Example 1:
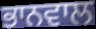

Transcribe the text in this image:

ਭਾਨਵਾਲ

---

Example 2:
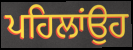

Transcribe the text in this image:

ਪਹਿਲਾਂਉਹ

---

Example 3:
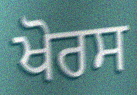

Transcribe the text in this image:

ਖੋਰਸ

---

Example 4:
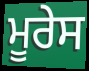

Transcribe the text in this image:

ਮੂਰੇਸ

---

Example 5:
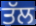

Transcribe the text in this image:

ਤੱਲ